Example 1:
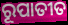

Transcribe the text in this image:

ରୂପାତୀତ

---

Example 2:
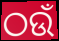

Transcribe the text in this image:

ଠଉଁ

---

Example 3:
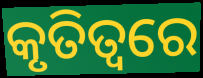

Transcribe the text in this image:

କୃତିତ୍ୱରେ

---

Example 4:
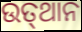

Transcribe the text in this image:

ଉତ୍‌ଥାନ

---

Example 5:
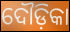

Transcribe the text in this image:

ଦୌଡ଼ିକା